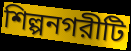
শিল্পনগরীটি